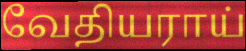
வேதியராய்